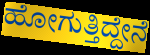
ಹೋಗುತ್ತಿದ್ದೇನೆ